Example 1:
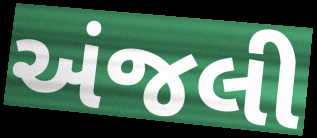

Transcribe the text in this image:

અંજલી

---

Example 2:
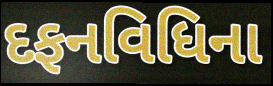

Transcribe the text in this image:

દફનવિધિના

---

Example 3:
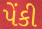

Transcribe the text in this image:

પેંકી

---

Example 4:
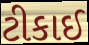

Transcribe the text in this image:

ટીકાઈ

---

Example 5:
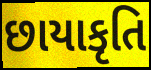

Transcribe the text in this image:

છાયાકૃતિ